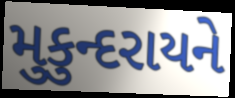
મુકુન્દરાયને